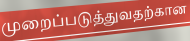
முறைப்படுத்துவதற்கான